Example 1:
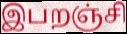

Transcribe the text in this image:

இபறஞ்சி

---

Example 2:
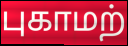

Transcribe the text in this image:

புகாமற்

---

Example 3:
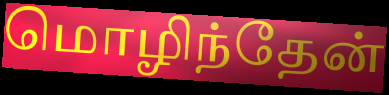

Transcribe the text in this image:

மொழிந்தேன்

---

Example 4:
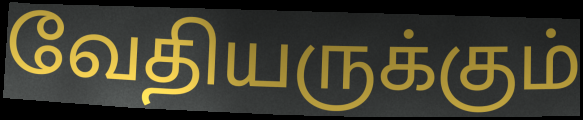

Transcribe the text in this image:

வேதியருக்கும்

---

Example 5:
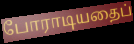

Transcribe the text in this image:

போராடியதைப்